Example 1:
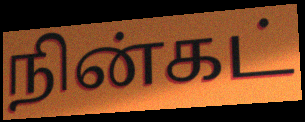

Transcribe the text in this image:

நின்கட்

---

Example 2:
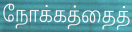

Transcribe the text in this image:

நோக்கத்தைத்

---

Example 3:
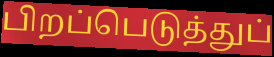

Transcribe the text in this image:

பிறப்பெடுத்துப்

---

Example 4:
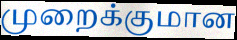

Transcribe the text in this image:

முறைக்குமான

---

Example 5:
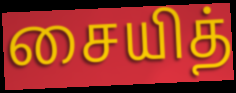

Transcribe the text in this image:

சையித்